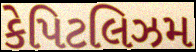
કેપિટલિઝમ